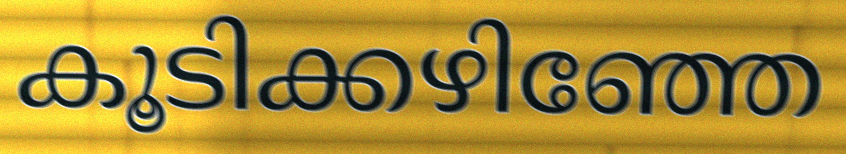
കൂടിക്കഴിഞ്ഞേ